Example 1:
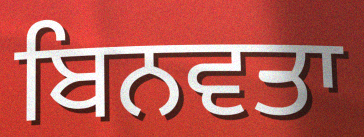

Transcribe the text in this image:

ਬਿਨਵਤਾ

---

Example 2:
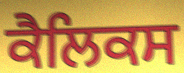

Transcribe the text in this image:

ਕੈਲਿਕਸ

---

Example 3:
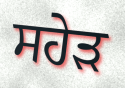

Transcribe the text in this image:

ਸਹੇੜ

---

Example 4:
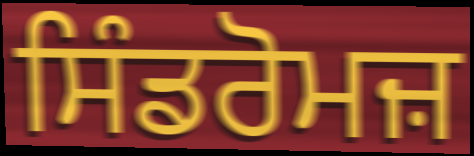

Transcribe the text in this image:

ਸਿੰਡਰੋਮਜ਼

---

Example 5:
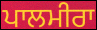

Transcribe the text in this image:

ਪਾਲਮੀਰਾ